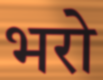
भरो